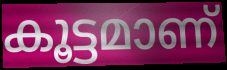
കൂട്ടമാണ്